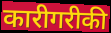
कारीगरीकी